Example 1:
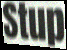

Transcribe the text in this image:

Stup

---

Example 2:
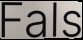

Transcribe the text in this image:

Fals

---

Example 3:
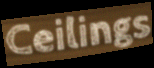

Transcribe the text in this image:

Ceilings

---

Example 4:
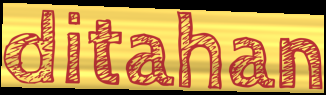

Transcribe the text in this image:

ditahan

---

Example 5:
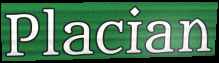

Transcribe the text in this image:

Placian